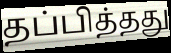
தப்பித்தது